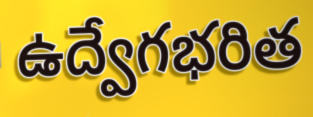
ఉద్వేగభరిత